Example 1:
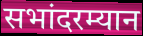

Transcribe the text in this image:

सभांदरम्यान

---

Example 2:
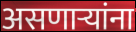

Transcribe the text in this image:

असणाऱ्यांना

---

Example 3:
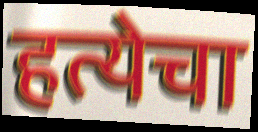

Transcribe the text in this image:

हत्येचा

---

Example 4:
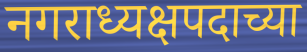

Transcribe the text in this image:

नगराध्यक्षपदाच्या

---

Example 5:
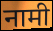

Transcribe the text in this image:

नामी